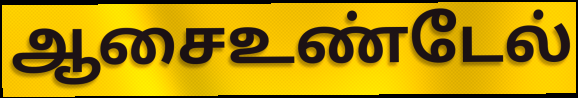
ஆசைஉண்டேல்